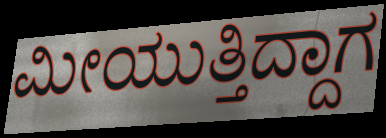
ಮೀಯುತ್ತಿದ್ದಾಗ